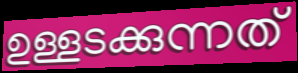
ഉള്ളടക്കുന്നത്